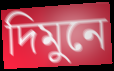
দিমুনে